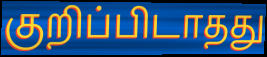
குறிப்பிடாதது